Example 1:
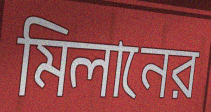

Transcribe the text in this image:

মিলানের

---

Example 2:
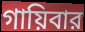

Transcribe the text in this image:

গায়িবার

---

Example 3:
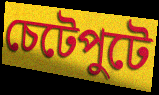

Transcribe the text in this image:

চেটেপুটে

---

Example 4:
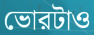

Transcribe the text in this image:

ভোরটাও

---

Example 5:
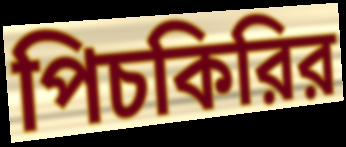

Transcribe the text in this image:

পিচকিরির